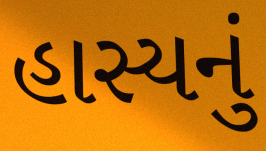
હાસ્યનું